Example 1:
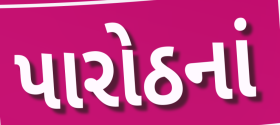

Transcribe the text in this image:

પારોઠનાં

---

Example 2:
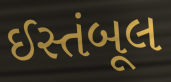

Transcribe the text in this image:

ઈસ્તંબૂલ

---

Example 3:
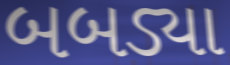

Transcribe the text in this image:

બબડ્યા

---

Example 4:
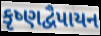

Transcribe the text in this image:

કૃષ્ણદ્વૈપાયન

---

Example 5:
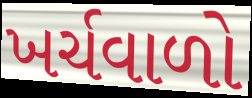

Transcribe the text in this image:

ખર્ચવાળો